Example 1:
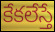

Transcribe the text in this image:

కేకలేస్తే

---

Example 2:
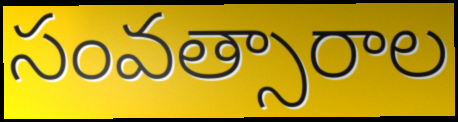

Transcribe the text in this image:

సంవత్సారాల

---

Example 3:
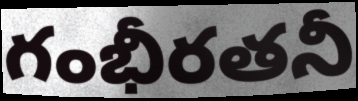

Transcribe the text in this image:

గంభీరతనీ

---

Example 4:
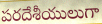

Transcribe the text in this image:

పరదేశీయులుగా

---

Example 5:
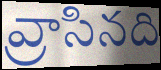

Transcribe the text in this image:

వ్రాసినది